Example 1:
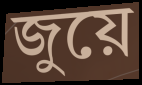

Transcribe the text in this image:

জুয়ে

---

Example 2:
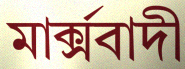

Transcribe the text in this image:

মাৰ্ক্সবাদী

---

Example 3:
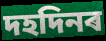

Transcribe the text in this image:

দহদিনৰ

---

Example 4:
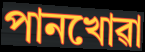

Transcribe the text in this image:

পানখোৱা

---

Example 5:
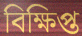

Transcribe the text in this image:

বিক্ষিপ্ত